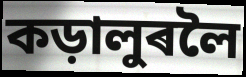
কড়ালুৰলৈ